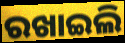
ରଖାଇଲି